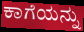
ಕಾಗೆಯನ್ನು